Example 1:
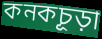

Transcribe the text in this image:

কনকচূড়া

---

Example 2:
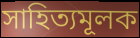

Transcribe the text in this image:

সাহিত্যমূলক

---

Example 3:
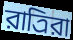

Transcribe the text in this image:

রাত্রিরা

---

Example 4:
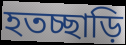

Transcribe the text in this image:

হতচ্ছাড়ি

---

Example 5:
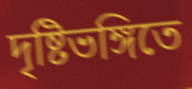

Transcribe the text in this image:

দৃষ্টিভঙ্গিতে